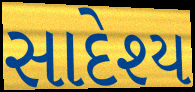
સાદેશ્ય